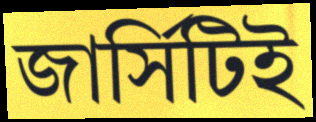
জার্সিটিই